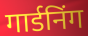
गार्डनिंग